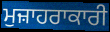
ਮੁਜ਼ਾਹਰਾਕਾਰੀ